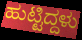
ಹುಟ್ಟಿದ್ದಳು